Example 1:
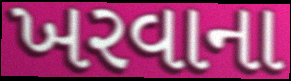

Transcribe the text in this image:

ખરવાના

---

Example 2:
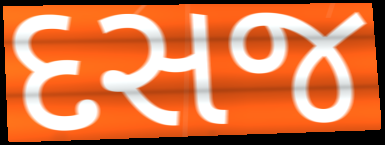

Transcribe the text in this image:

દસજ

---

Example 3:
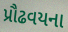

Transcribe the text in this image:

પ્રૌઢવયના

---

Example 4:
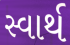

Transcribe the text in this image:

સ્વાર્થ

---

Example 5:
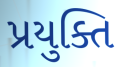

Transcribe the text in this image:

પ્રયુક્તિ